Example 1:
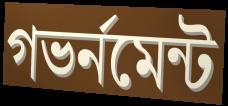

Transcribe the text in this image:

গভর্নমেন্ট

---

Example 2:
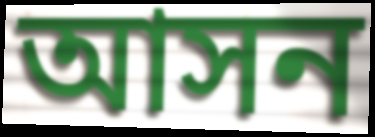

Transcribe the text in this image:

আসন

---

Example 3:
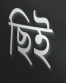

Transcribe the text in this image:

ছিই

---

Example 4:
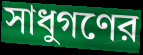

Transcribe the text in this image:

সাধুগণের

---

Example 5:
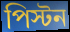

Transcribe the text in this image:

পিস্টন